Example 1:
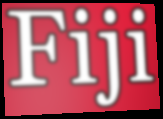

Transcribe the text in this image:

Fiji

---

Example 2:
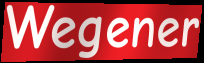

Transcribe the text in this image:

Wegener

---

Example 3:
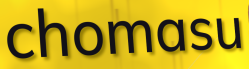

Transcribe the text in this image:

chomasu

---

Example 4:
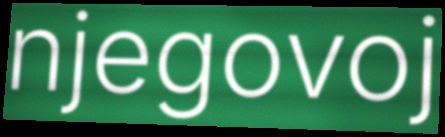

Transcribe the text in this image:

njegovoj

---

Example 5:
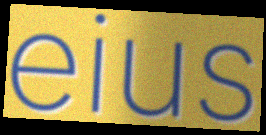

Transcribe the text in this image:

eius